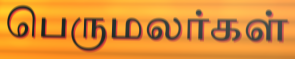
பெருமலர்கள்